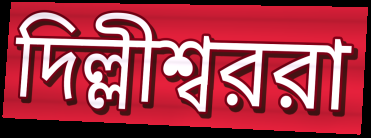
দিল্লীশ্বররা